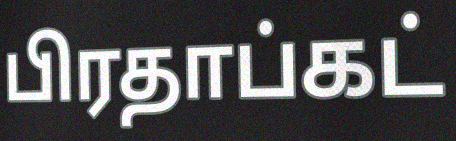
பிரதாப்கட்